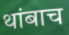
थांबाच